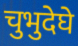
चुभुदेघे